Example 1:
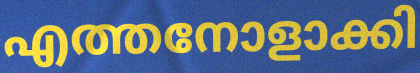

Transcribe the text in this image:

എത്തനോളാക്കി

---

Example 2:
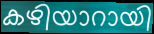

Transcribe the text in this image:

കഴിയാറായി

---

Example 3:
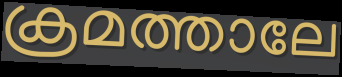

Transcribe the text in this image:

ക്രമത്താലേ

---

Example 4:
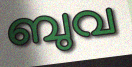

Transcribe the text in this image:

ബുവ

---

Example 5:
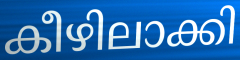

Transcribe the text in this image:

കീഴിലാക്കി